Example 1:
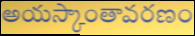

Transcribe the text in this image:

అయస్కాంతావరణం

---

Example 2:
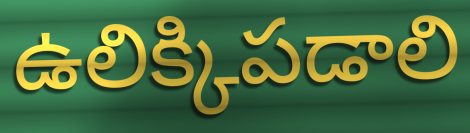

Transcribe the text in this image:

ఉలిక్కిపడాలి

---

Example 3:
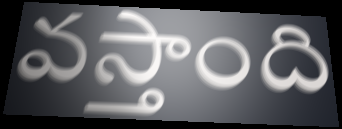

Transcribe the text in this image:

వస్తాంది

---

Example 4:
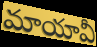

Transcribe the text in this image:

మాయావీ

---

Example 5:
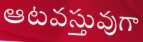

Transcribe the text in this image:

ఆటవస్తువుగా